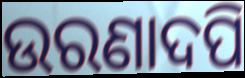
ଉରଣାଦପି